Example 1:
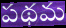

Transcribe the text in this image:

పథమ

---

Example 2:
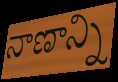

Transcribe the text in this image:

నాణాన్ని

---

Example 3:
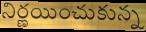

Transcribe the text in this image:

నిర్ణయించుకున్న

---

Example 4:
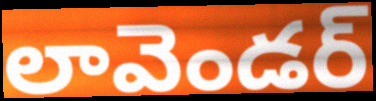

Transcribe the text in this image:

లావెండర్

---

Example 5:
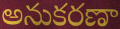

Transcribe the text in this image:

అనుకరణా